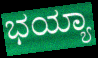
ಭಯ್ಯಾ